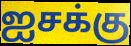
ஐசக்கு